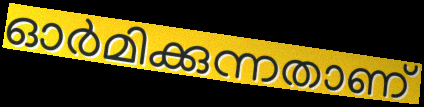
ഓർമിക്കുന്നതാണ്